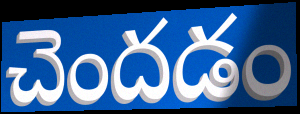
చెందడం